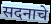
सदनाचे